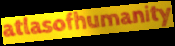
atlasofhumanity